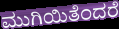
ಮುಗಿಯಿತೆಂದರೆ